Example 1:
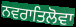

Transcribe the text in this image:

ਨਵਰਾਤਿਲੋਵਾ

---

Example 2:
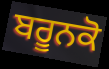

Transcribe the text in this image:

ਬਰੂਨਕੋ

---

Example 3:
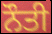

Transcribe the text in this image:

ਨੌਤੀ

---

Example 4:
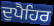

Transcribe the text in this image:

ਦੁਪੈਹਿਰ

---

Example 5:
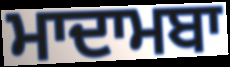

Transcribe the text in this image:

ਮਾਦਾਮਬਾ